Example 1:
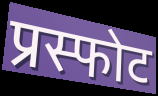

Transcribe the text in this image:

प्रस्फोट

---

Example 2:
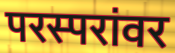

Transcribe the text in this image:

परस्परांवर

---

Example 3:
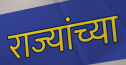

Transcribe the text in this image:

राज्यांच्या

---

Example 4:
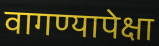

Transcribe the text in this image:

वागण्यापेक्षा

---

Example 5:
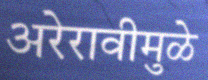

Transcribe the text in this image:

अरेरावीमुळे